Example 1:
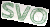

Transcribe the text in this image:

SVO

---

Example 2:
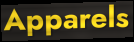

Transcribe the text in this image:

Apparels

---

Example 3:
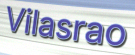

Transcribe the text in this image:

Vilasrao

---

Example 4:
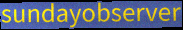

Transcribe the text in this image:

sundayobserver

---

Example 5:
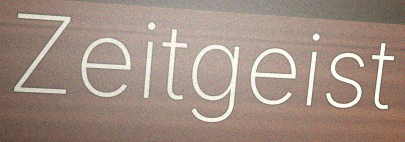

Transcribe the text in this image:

Zeitgeist